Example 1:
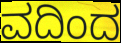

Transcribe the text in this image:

ವದಿಂದ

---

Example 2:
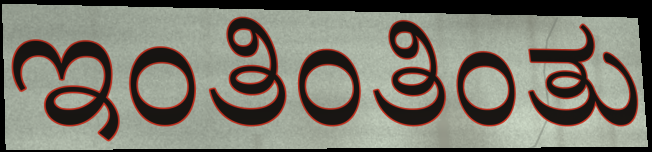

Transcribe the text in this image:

ಇಂತಿಂತಿಂತು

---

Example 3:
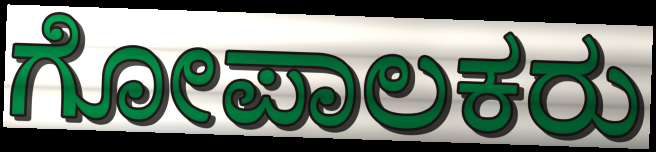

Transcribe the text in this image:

ಗೋಪಾಲಕರು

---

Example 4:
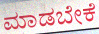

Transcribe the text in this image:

ಮಾಡಬೇಕೆ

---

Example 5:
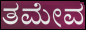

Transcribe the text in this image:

ತಮೇವ